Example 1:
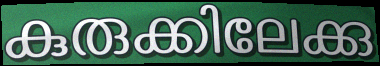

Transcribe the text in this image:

കുരുക്കിലേക്കു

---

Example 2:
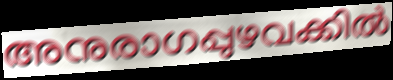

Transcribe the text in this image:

അനുരാഗപ്പുഴവക്കിൽ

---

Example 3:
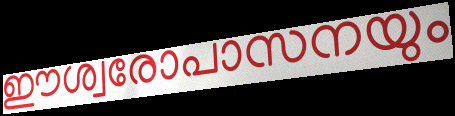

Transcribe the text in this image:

ഈശ്വരോപാസനയും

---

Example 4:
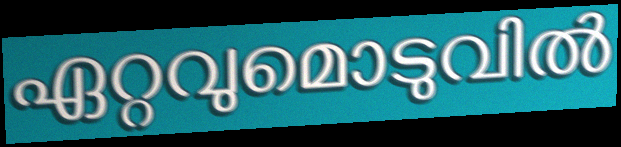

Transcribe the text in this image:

ഏറ്റവുമൊടുവിൽ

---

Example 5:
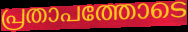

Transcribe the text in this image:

പ്രതാപത്തോടെ